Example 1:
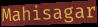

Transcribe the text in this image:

Mahisagar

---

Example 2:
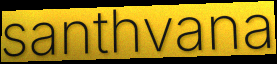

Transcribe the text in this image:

santhvana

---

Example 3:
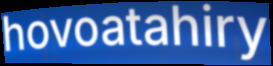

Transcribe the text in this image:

hovoatahiry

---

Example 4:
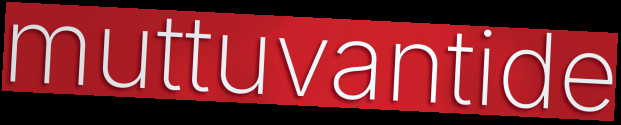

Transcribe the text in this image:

muttuvantide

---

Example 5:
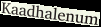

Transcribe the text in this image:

Kaadhalenum